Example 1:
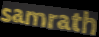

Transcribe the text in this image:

samrath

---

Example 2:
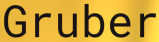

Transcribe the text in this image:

Gruber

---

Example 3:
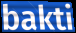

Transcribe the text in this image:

bakti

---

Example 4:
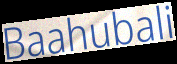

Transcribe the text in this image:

Baahubali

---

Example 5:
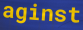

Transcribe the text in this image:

aginst